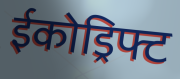
ईकोड्रिफ्ट